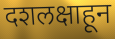
दशलक्षाहून